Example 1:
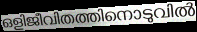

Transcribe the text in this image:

ഒളിജീവിതത്തിനൊടുവിൽ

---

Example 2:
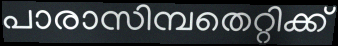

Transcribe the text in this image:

പാരാസിമ്പതെറ്റിക്ക്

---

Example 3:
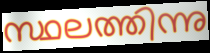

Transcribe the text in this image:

സ്ഥലത്തിന്നു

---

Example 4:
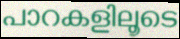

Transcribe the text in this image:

പാറകളിലൂടെ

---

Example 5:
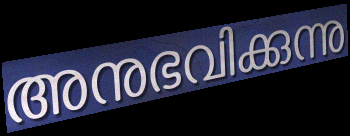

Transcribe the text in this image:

അനുഭവിക്കുന്നു